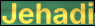
Jehadi